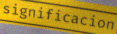
significacion